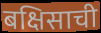
बक्षिसाची